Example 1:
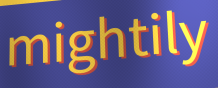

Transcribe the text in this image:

mightily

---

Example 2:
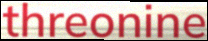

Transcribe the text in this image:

threonine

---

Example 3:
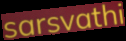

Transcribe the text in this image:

sarsvathi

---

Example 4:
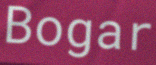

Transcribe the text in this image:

Bogar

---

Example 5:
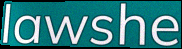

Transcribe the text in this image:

lawshe